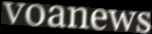
voanews